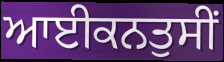
ਆਈਕਨਤੁਸੀਂ